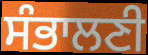
ਸੰਭਾਲਣੀ